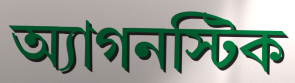
অ্যাগনস্টিক